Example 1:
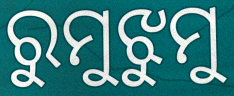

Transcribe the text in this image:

ରୁମୁଝୁମୁ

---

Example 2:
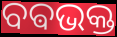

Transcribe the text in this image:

ବଵଭକ୍ତ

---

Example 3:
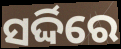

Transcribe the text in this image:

ସର୍ଦ୍ଦିରେ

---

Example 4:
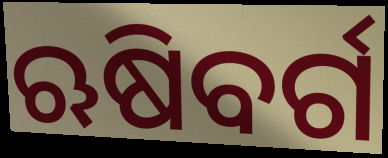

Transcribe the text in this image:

ଋଷିବର୍ଗ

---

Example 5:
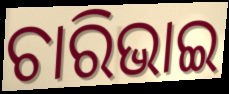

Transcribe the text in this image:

ଚାରିଭାଇ